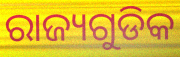
ରାଜ୍ୟଗୁଡିକ